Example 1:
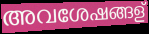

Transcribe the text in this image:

അവശേഷങ്ങള്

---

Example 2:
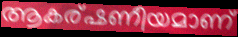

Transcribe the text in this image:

ആകര്ഷണീയമാണ്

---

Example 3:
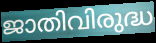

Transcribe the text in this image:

ജാതിവിരുദ്ധ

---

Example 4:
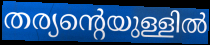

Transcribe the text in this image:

തര്യന്റെയുള്ളിൽ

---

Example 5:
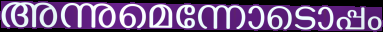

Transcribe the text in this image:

അന്നുമെന്നോടൊപ്പം